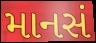
માનસં